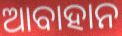
ଆବାହାନ